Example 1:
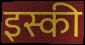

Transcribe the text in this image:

इस्की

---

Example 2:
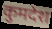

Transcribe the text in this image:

कुमदेश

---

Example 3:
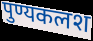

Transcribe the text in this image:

पुण्यकलश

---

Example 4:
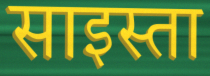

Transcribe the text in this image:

साइस्ता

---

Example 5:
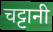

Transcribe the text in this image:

चट्टानी